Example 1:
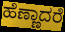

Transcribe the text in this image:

ಹೆಣ್ಣಾದರೆ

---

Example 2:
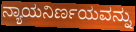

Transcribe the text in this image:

ನ್ಯಾಯನಿರ್ಣಯವನ್ನು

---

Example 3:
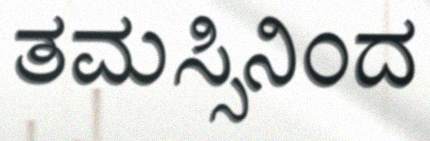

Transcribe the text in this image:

ತಮಸ್ಸಿನಿಂದ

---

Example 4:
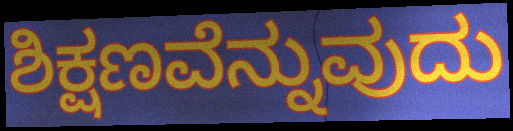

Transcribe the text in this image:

ಶಿಕ್ಷಣವೆನ್ನುವುದು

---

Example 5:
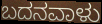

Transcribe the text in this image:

ಬದನವಾಳು